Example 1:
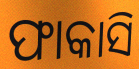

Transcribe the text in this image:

ଫାକାସି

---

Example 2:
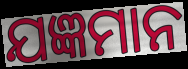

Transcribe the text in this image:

ଯଜ୍ଞମାନ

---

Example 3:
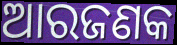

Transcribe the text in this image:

ଆରଜଣକ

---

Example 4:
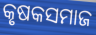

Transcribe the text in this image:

କୃଷକସମାଜ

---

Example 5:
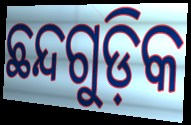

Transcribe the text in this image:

ଛନ୍ଦଗୁଡ଼ିକ